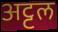
अट्टल